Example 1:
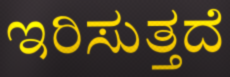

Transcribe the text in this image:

ಇರಿಸುತ್ತದೆ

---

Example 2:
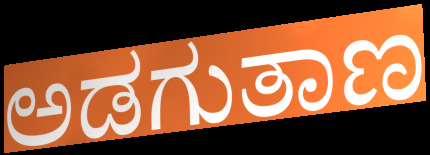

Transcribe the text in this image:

ಅಡಗುತಾಣ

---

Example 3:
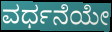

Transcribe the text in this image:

ವರ್ಧನೆಯೇ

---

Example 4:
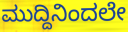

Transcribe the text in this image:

ಮುದ್ದಿನಿಂದಲೇ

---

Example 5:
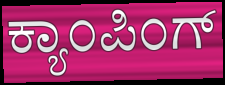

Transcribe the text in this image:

ಕ್ಯಾಂಪಿಂಗ್